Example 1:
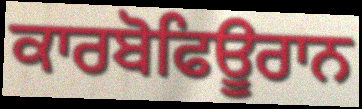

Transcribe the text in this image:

ਕਾਰਬੋਫਿਊਰਾਨ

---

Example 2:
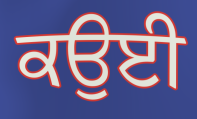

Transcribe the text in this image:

ਕਉਈ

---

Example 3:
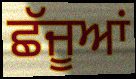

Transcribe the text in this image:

ਛੱਜੂਆਂ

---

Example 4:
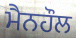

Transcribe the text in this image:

ਮੈਨਹੌਲ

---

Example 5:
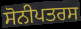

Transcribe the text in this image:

ਸੋਨੀਪਤਰਸ